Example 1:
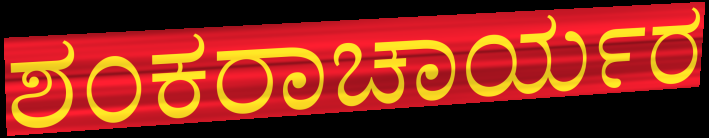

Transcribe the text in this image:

ಶಂಕರಾಚಾರ್ಯರ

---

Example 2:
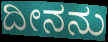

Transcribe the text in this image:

ದೀನನು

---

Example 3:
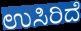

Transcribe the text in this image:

ಉಸಿರಿದೆ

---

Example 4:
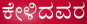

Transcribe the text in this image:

ಕೇಳಿದವರ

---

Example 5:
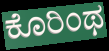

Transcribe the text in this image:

ಕೊರಿಂಥ